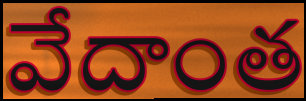
వేదాంత